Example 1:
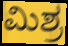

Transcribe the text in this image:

ಮಿಶ್ರ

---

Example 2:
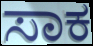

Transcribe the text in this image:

ಸಾಕ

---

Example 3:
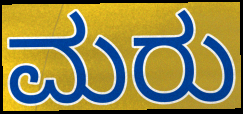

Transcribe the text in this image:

ಮರು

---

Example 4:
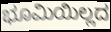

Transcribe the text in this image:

ಭೂಮಿಯಿಲ್ಲದ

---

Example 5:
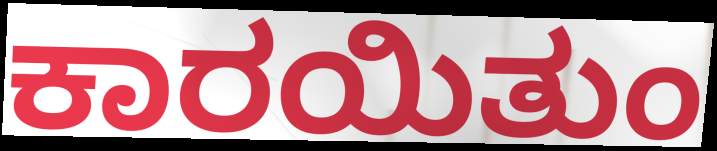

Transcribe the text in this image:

ಕಾರಯಿತುಂ